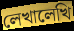
লেখালেখি